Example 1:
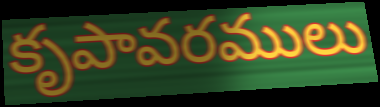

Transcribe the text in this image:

కృపావరములు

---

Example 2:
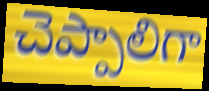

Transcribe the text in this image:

చెప్పాలిగా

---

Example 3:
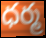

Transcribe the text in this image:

ధర్మ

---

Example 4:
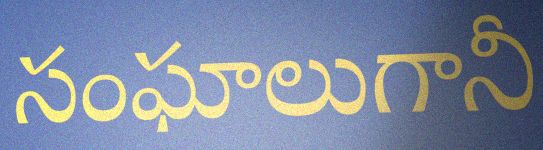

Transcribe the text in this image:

సంఘాలుగానీ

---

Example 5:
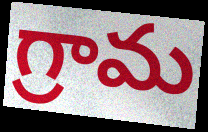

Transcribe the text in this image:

గ్రామ